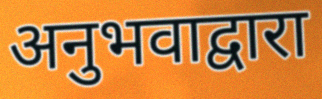
अनुभवाद्वारा